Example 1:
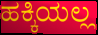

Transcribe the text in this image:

ಹಕ್ಕಿಯಲ್ಲ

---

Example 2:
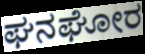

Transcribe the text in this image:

ಘನಘೋರ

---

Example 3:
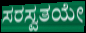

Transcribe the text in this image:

ಸರಸ್ವತಯೇ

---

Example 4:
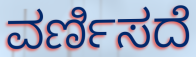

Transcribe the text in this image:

ವರ್ಣಿಸದೆ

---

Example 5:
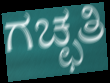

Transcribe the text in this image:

ಗಚ್ಛತಿ